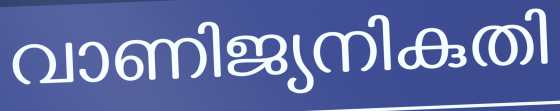
വാണിജ്യനികുതി